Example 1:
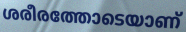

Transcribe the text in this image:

ശരീരത്തോടെയാണ്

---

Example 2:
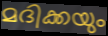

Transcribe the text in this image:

മദിക്കയും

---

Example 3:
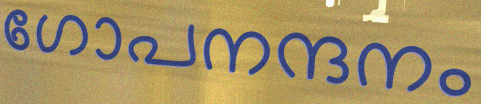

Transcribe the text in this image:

ഗോപനന്ദനം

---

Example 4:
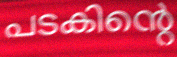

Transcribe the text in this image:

പടകിന്റെ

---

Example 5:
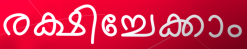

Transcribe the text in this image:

രക്ഷിച്ചേക്കാം